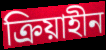
ক্রিয়াহীন